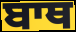
ਬਾਥ